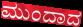
ಮುಂದಾದ